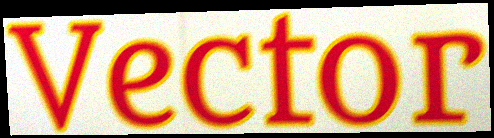
Vector